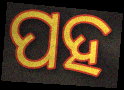
ପହ